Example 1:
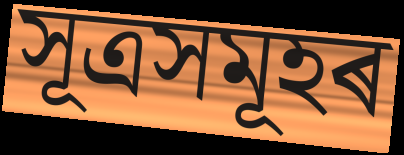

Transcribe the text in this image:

সূত্ৰসমূহৰ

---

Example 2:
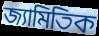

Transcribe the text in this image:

জ্যামিতিক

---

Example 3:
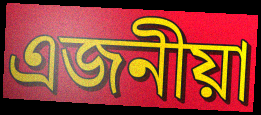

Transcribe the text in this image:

এজনীয়া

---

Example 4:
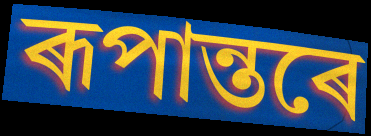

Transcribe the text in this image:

ৰূপান্তৰে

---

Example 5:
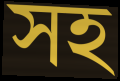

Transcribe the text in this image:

সহ